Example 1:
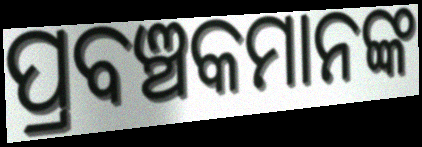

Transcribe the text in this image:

ପ୍ରବଞ୍ଚକମାନଙ୍କ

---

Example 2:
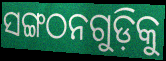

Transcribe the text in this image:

ସଙ୍ଗଠନଗୁଡ଼ିକୁ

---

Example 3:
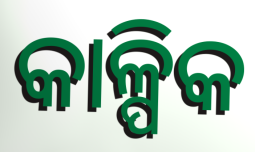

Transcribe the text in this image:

କାଳ୍ପିକ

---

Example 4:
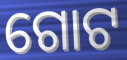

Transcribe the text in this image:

ଗୋଟ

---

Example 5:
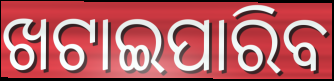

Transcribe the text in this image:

ଖଟାଇପାରିବ